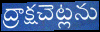
ద్రాక్షచెట్లను